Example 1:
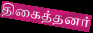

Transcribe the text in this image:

திகைத்தனர்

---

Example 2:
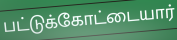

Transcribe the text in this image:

பட்டுக்கோட்டையார்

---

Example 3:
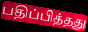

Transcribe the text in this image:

பதிப்பித்தது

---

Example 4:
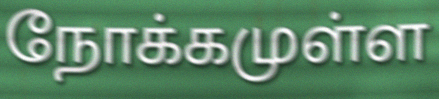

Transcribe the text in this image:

நோக்கமுள்ள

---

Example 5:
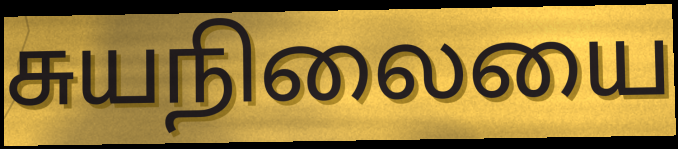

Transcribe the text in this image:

சுயநிலையை